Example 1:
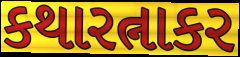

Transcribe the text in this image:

કથારત્નાકર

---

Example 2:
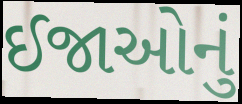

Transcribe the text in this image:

ઈજાઓનું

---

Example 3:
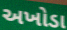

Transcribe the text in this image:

અખોડા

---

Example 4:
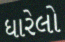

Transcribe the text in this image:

ધારેલો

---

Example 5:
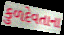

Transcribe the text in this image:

કુળદેવતાના